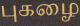
புகழை